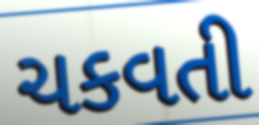
ચકવતી